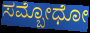
ಸಮ್ಬೋಧೋ